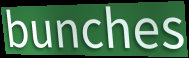
bunches